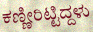
ಕಣ್ಣೀರಿಟ್ಟಿದ್ದಳು